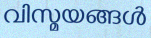
വിസ്മയങ്ങൾ